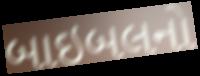
બાઇબલનો